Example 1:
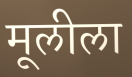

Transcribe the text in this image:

मूलीला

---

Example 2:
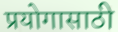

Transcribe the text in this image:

प्रयोगासाठी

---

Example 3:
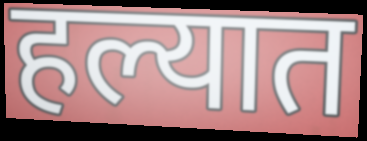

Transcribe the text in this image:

हल्यात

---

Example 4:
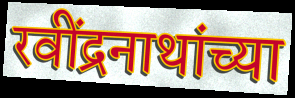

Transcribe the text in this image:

रवींद्रनाथांच्या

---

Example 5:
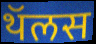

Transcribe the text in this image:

थॅलस